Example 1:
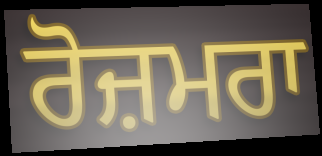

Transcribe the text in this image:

ਰੋਜ਼ਮਰਾ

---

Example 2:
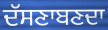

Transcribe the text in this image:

ਦੱਸਣਾਬਣਦਾ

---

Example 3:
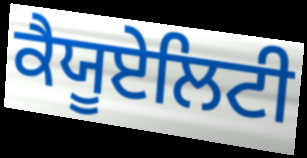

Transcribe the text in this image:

ਕੈਯੂਏਲਿਟੀ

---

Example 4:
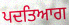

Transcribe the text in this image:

ਪਦਤਿਆਗ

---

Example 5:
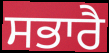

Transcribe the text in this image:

ਸਭਾਰੈ